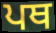
ਪਥ